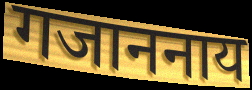
गजाननाय